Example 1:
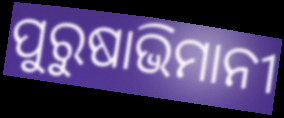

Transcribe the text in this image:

ପୁରୁଷାଭିମାନୀ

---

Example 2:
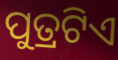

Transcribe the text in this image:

ପୁତ୍ରଟିଏ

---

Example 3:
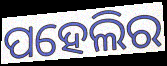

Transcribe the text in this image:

ପହେଲିର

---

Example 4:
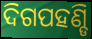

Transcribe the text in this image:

ଦିଗପହଣ୍ଡି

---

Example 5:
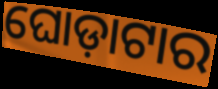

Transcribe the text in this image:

ଘୋଡ଼ାଟାର